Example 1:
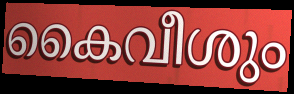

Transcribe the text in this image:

കൈവീശും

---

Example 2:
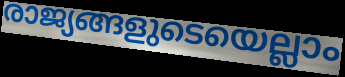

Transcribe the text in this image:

രാജ്യങ്ങളുടെയെല്ലാം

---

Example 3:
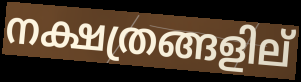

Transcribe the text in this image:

നക്ഷത്രങ്ങളില്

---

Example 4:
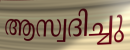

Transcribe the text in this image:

ആസ്വദിച്ചു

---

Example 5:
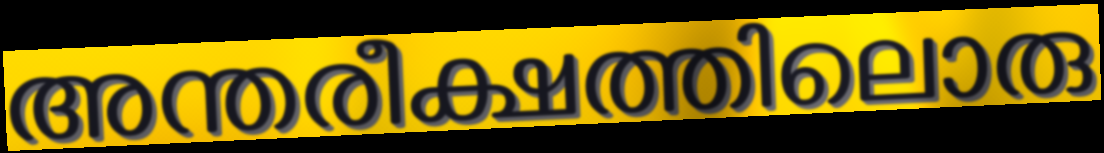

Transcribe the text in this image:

അന്തരീക്ഷത്തിലൊരു